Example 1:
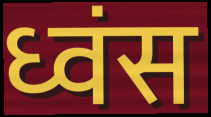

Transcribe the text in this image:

ध्वंस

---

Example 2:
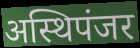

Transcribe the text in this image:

अस्थिपंजर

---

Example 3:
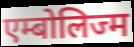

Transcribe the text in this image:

एम्बोलिज्म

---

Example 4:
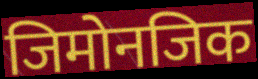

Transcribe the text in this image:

जिमोनजिक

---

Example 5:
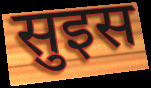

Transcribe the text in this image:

सुइस